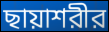
ছায়াশরীর